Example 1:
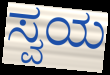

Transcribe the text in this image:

ಸ್ವಯ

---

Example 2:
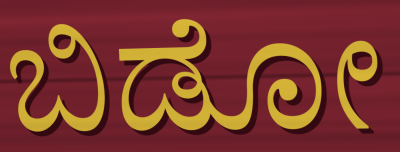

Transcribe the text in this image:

ಬಿಡೋ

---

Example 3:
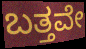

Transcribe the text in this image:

ಬತ್ತವೇ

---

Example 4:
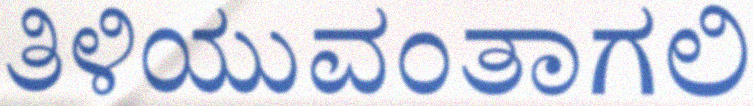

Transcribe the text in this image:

ತಿಳಿಯುವಂತಾಗಲಿ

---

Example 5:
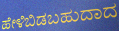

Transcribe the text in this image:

ಹೇಳಿಬಿಡಬಹುದಾದ